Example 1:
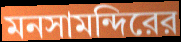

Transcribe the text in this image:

মনসামন্দিরের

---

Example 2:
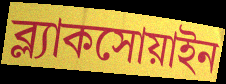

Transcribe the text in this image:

ব্ল্যাকসোয়াইন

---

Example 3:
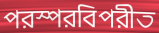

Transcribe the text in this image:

পরস্পরবিপরীত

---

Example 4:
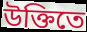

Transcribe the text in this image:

উক্তিতে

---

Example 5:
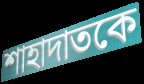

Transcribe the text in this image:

শাহাদাতকে